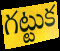
గట్టుక